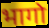
भागो